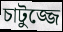
চাটুজ্জে